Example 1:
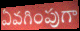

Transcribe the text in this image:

ఏవగింపుగా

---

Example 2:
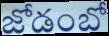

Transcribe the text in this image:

జోడంబో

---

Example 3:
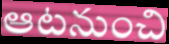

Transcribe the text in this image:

ఆటనుంచి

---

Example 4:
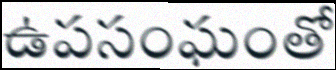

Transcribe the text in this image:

ఉపసంఘంతో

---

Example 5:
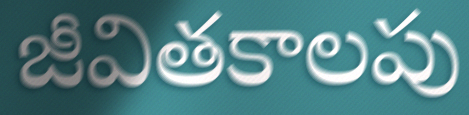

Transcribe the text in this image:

జీవితకాలపు